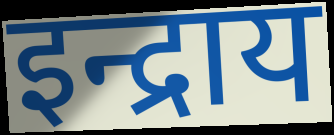
इन्द्राय